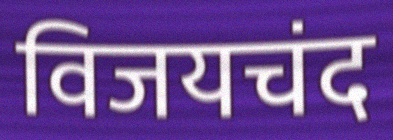
विजयचंद